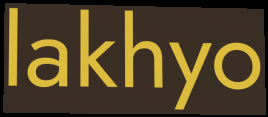
lakhyo